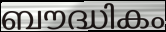
ബൗദ്ധികം